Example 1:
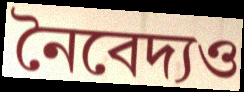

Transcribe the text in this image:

নৈবেদ্যও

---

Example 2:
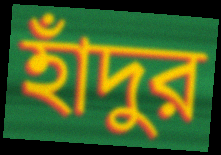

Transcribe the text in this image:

হাঁদুর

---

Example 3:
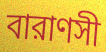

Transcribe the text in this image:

বারাণসী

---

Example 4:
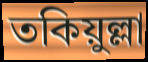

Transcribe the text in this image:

তকিয়ুল্লা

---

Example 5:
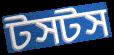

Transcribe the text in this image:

টসটস